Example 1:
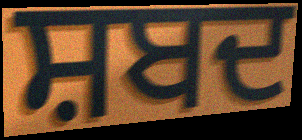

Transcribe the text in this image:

ਸ਼ਬਦ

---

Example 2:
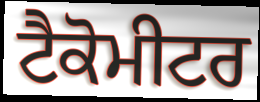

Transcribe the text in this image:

ਟੈਕੋਮੀਟਰ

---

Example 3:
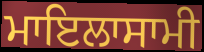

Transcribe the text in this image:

ਮਾਇਲਾਸਾਮੀ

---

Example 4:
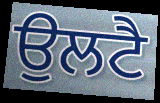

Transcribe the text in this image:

ਉਲਟੈ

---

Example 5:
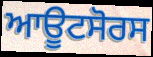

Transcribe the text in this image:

ਆਊਟਸੋਰਸ